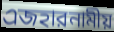
এজহারনামীয়